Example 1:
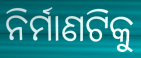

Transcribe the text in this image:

ନିର୍ମାଣଟିକୁ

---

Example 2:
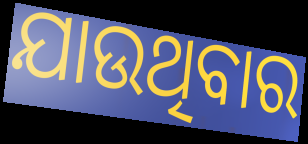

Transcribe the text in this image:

ଯାଉଥିବାର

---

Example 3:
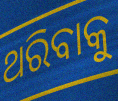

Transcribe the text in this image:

ଥରିବାକୁ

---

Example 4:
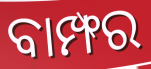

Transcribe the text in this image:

ବାମ୍ଫର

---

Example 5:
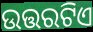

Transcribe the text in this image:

ଉତ୍ତରଟିଏ